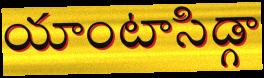
యాంటాసిడ్గా